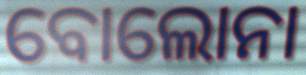
ବୋଲୋନା